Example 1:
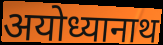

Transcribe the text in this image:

अयोध्यानाथ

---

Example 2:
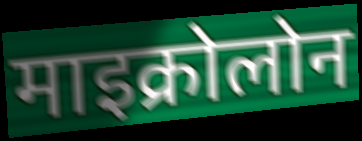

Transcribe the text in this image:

माइक्रोलोन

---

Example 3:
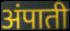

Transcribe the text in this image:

अंपाती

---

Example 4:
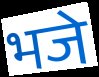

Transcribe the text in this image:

भजे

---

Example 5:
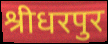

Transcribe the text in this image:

श्रीधरपुर